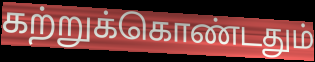
கற்றுக்கொண்டதும்